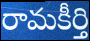
రామకీర్తి